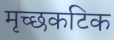
मृच्छकटिक